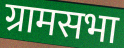
ग्रामसभा